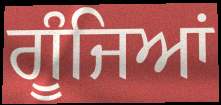
ਗੂੰਜਿਆਂ